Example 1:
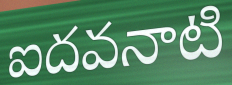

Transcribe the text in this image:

ఐదవనాటి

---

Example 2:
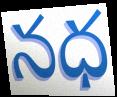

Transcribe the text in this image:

నధ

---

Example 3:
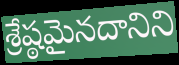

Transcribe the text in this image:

శ్రేష్ఠమైనదానిని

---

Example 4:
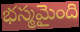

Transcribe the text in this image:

భస్మమైంది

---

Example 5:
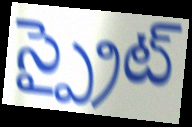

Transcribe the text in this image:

స్ప్రైట్